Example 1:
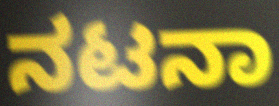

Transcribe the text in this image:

ನಟನಾ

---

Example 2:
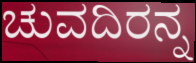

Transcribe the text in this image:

ಚುವದಿರನ್ನ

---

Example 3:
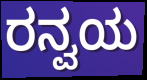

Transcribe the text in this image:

ರನ್ವಯ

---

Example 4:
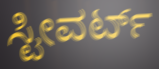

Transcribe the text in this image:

ಸ್ಟೀವರ್ಟ್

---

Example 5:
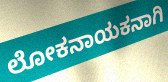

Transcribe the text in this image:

ಲೋಕನಾಯಕನಾಗಿ